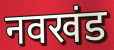
नवखंड